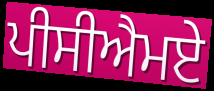
ਪੀਸੀਐਮਏ